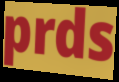
prds